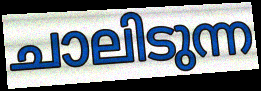
ചാലിടുന്ന